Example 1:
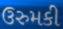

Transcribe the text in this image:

ઉરુમકી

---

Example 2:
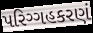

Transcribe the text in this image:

પરિગ્ગહકરણં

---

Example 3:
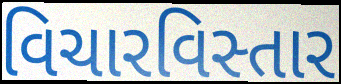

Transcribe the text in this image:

વિચારવિસ્તાર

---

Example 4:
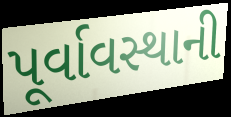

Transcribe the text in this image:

પૂર્વાવસ્થાની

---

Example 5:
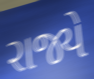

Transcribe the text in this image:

રાજ્યે